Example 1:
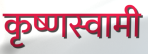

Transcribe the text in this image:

कृष्णस्वामी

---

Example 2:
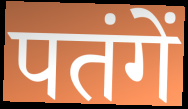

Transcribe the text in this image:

पतंगें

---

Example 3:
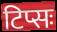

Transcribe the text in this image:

टिप्सः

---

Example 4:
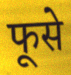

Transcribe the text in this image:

फूसे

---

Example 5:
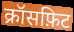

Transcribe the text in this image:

क्रॉसफ़िट